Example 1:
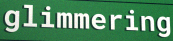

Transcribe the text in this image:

glimmering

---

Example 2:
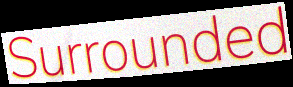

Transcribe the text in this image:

Surrounded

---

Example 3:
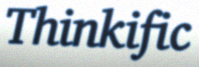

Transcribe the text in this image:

Thinkific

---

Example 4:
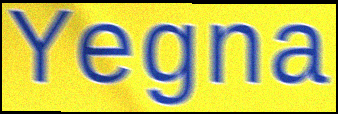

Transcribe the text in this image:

Yegna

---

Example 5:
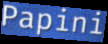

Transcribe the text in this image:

Papini